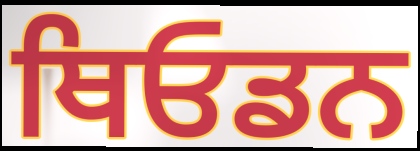
ਥਿਓਡਨ